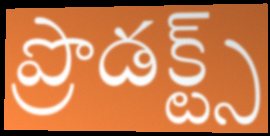
ప్రొడక్ట్స్